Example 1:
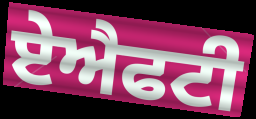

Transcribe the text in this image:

ਏਐਫਟੀ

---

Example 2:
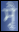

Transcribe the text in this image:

ਸ੍ਵੈ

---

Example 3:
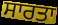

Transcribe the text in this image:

ਸਾਰਤਾ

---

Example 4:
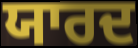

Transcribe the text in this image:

ਯਾਰਦ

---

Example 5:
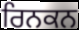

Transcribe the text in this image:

ਰਿਨਕਨ